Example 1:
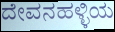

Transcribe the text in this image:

ದೇವನಹಳ್ಳಿಯ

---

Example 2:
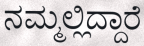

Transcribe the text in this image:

ನಮ್ಮಲ್ಲಿದ್ದಾರೆ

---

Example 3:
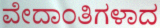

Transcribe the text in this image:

ವೇದಾಂತಿಗಳಾದ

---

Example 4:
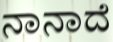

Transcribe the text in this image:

ನಾನಾದೆ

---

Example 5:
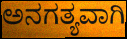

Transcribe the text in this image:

ಅನಗತ್ಯವಾಗಿ